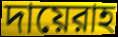
দায়েরাহ